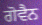
ਗੋਵੈਨ